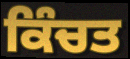
ਕਿੰਚਤ